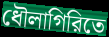
ধৌলাগিরিতে